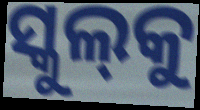
ସ୍କୁଲ୍‌କୁ